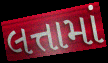
લત્તામાં